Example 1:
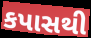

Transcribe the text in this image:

કપાસથી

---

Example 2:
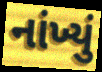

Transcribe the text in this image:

નાંખ્યું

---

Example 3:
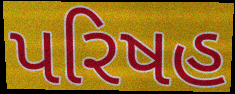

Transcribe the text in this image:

પરિષહ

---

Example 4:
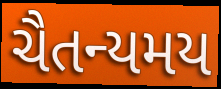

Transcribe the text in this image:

ચૈતન્યમય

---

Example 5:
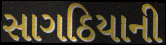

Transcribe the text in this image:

સાગઠિયાની